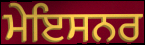
ਮੇਇਸਨਰ